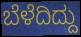
ಬೆಳೆದಿದ್ದು